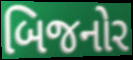
બિજનોર